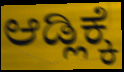
ಆಡ್ಲಿಕ್ಕೆ